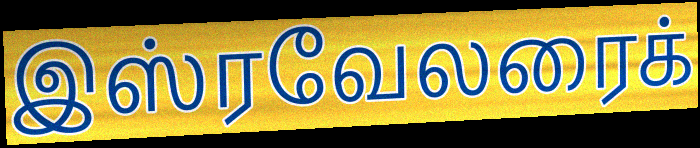
இஸ்ரவேலரைக்